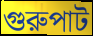
গুরুপাট